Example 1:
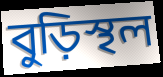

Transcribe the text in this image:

বুড়িস্থল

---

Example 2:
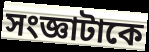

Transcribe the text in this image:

সংজ্ঞাটাকে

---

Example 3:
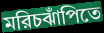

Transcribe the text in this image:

মরিচঝাঁপিতে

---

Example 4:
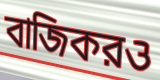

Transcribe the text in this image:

বাজিকরও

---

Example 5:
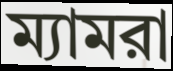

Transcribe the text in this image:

ম্যামরা